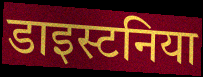
डाइस्टनिया